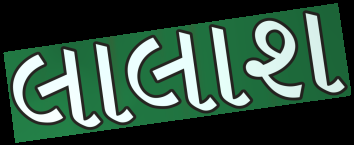
લાલાશ